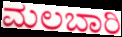
ಮಲಬಾರಿ